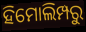
ହିମୋଲିମ୍ପରୁ